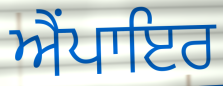
ਐੰਪਾਇਰ